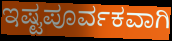
ಇಷ್ಟಪೂರ್ವಕವಾಗಿ